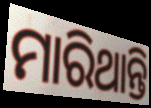
ମାରିଥାନ୍ତି